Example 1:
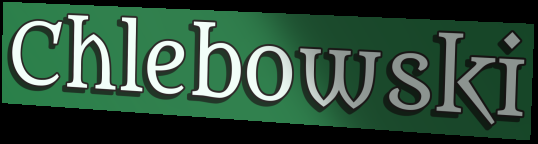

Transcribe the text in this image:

Chlebowski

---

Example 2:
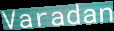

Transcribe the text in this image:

Varadan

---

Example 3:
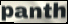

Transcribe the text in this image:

panth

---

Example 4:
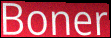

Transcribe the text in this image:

Boner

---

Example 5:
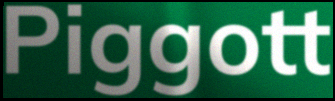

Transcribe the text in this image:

Piggott